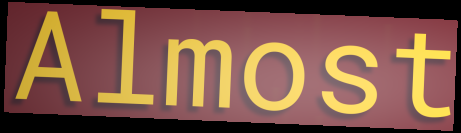
Almost